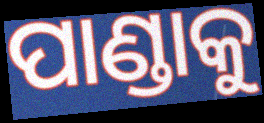
ପାଣ୍ଡାକୁ